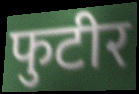
फुटीर